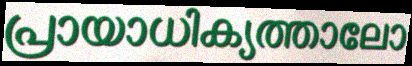
പ്രായാധിക്യത്താലോ